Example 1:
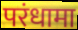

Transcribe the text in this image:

परंधामा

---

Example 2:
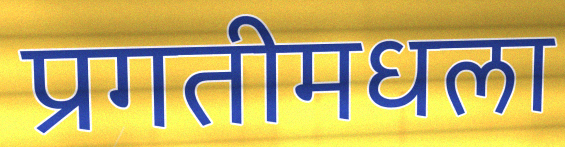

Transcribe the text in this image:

प्रगतीमधला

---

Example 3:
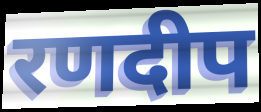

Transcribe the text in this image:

रणदीप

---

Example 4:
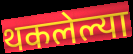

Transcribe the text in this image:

थकलेल्या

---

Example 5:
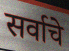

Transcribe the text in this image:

सर्वाचे